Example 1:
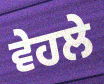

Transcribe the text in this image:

ਵੇਹਲੇ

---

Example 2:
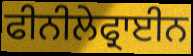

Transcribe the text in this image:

ਫੀਨੀਲੇਫ੍ਰਾਈਨ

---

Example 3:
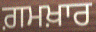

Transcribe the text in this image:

ਗ਼ਮਖ਼ਾਰ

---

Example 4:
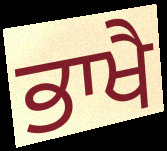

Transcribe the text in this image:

ਭਾਖੈ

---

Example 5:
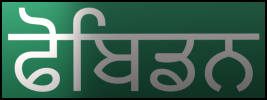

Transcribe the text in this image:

ਫੋਬਿਡਨ